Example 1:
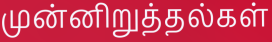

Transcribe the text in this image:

முன்னிறுத்தல்கள்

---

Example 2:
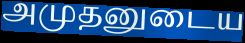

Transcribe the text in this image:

அமுதனுடைய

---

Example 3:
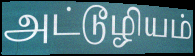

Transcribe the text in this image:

அட்டூழியம்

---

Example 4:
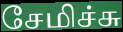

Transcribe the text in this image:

சேமிச்சு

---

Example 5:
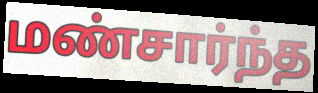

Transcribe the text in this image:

மண்சார்ந்த